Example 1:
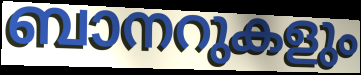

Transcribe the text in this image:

ബാനറുകളും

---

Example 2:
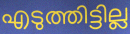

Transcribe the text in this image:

എടുത്തിട്ടില്ല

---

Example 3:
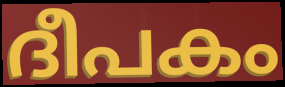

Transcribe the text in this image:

ദീപകം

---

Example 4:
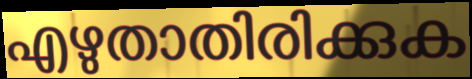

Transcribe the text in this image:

എഴുതാതിരിക്കുക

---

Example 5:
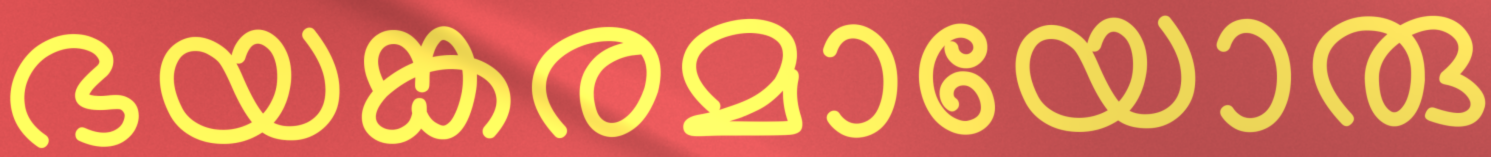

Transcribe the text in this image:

ഭയങ്കരമായോരു